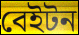
বেইটন